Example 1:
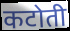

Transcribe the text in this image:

कटोती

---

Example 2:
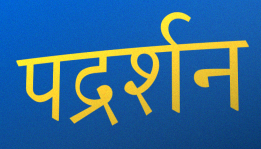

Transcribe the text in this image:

पद्रर्शन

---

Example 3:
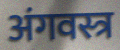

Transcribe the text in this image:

अंगवस्त्र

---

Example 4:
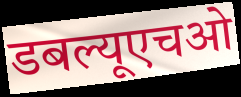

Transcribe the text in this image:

डबल्यूएचओ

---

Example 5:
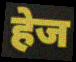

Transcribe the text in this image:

हेज